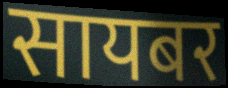
सायबर